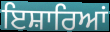
ਇਸ਼ਾਰਿਆਂ